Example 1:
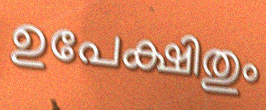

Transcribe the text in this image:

ഉപേക്ഷിതും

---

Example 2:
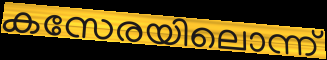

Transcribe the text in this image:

കസേരയിലൊന്ന്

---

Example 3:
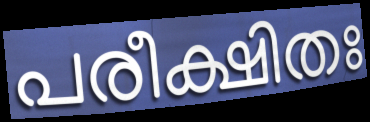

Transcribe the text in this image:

പരീക്ഷിതഃ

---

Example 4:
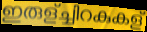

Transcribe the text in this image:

ഇരുള്ച്ചിറകുകള്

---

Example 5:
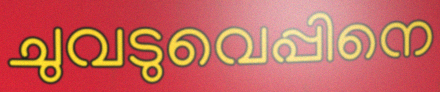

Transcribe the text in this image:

ചുവടുവെപ്പിനെ